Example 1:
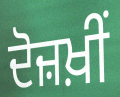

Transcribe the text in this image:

ਦੋਜ਼ਖ਼ੀਂ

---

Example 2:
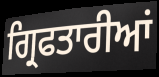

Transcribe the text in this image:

ਗ੍ਰਿਫਤਾਰੀਆਂ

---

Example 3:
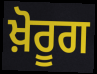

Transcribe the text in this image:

ਖ਼ੋਰੂਗ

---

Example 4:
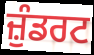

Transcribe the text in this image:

ਜ਼ੁੰਡਰਟ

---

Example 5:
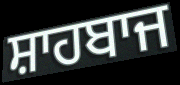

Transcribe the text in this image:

ਸ਼ਾਹਬਾਜ